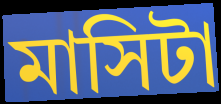
মাসিটা